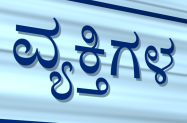
ವ್ಯಕ್ತಿಗಳ